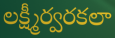
లక్ష్మీర్వరకలా